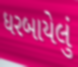
ધરબાયેલું